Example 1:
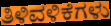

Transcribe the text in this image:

ತಿಳಿವಳಿಕೆಗಳು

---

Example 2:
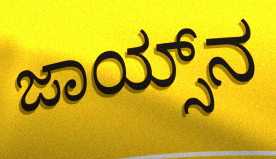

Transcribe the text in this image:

ಜಾಯ್ಸ್‌ನ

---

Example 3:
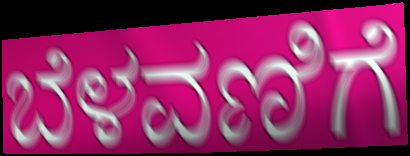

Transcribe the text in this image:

ಬೆಳವಣಿಗೆ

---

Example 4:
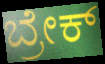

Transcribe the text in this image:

ಬ್ರೇಕ್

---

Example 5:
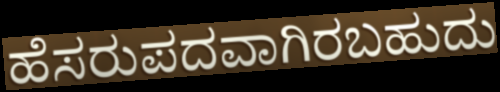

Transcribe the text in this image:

ಹೆಸರುಪದವಾಗಿರಬಹುದು